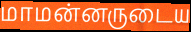
மாமன்னருடைய